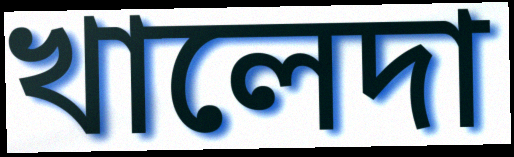
খালেদা